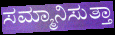
ಸಮ್ಮಾನಿಸುತ್ತಾ